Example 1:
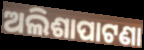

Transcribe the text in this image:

ଅଲିଶାପାଟଣା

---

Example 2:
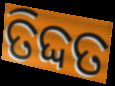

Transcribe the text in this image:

ତିଦ୍ଦତ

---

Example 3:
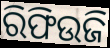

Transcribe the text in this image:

ରିଫିଉଜି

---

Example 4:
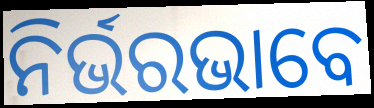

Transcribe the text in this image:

ନିର୍ଭରଭାବେ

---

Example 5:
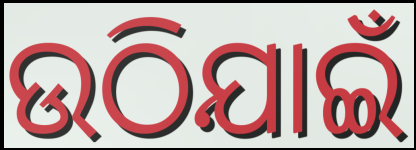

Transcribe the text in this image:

ଉଠିଯାଇଁ